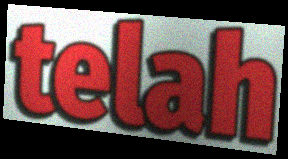
telah